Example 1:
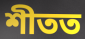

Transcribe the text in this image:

শীতত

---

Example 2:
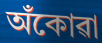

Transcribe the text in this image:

অঁকোৱা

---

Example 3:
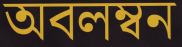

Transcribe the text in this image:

অবলম্বন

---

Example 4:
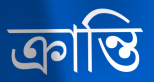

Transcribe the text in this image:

ক্ৰান্তি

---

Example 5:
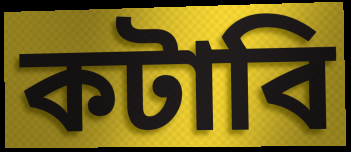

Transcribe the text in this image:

কটাবি